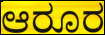
ಆರೂರ